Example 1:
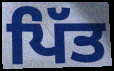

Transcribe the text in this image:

ਪਿੱਤ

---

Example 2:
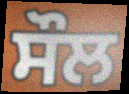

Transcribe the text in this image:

ਸੌਲ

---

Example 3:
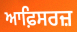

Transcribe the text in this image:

ਆਫ਼ਿਸਰਜ਼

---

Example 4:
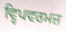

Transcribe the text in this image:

ਵ੍ਹਿਪਵਰਮਜ਼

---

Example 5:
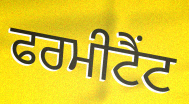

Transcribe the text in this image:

ਫਰਮੀਟੈਂਟ